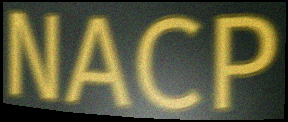
NACP